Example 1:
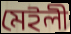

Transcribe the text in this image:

মেইলী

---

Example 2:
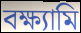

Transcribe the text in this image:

বক্ষ্যামি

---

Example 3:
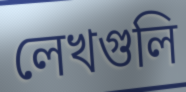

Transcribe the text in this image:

লেখগুলি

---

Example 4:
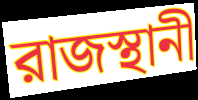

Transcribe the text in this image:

রাজস্থানী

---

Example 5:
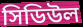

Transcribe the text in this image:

সিডিউল